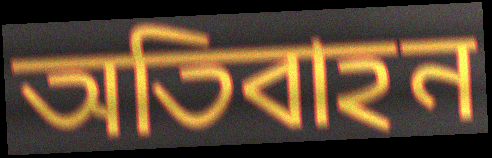
অতিবাহন